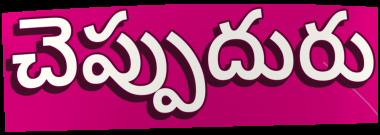
చెప్పుదురు